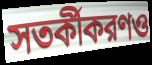
সতর্কীকরণও